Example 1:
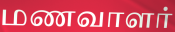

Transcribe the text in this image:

மணவாளர்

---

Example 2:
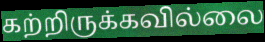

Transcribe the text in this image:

கற்றிருக்கவில்லை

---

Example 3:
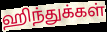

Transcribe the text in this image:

ஹிந்துக்கள்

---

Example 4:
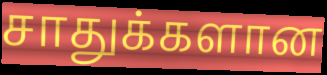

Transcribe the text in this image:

சாதுக்களான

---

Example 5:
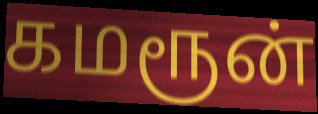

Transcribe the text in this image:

கமரூன்